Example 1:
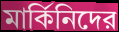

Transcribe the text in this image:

মার্কিনিদের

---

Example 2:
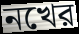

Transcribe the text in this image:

নখের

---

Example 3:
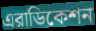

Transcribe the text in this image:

এরাডিকেশন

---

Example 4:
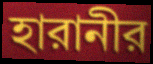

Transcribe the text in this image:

হারানীর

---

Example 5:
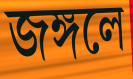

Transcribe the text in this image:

জঙ্গলে